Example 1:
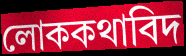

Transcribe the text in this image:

লোককথাবিদ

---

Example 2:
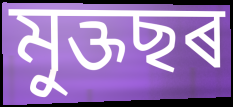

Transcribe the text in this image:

মুক্তছৰ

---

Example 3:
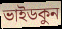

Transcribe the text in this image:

ভাইডকুন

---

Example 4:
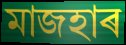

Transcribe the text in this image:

মাজহাৰ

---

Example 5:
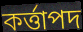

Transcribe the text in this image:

কৰ্ত্তাপদ